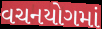
વચનયોગમાં